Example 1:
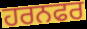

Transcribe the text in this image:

ਹਰਨਫਰ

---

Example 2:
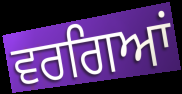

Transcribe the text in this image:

ਵਰਗਿਆਂ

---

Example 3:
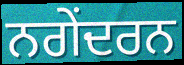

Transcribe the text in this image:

ਨਗੇਂਦਰਨ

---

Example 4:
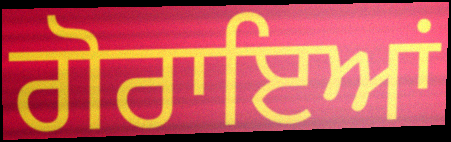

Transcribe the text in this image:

ਗੋਰਾਇਆਂ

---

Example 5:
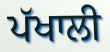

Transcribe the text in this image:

ਪੱਖਾਲੀ